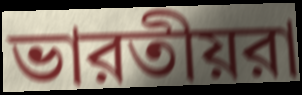
ভারতীয়রা